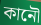
কানৌ